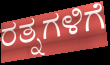
ರತ್ನಗಳಿಗೆ